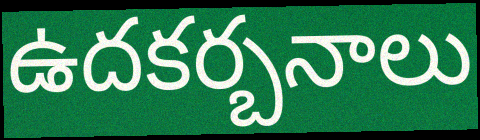
ఉదకర్బనాలు